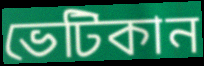
ভেটিকান